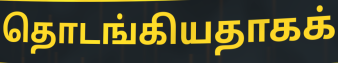
தொடங்கியதாகக்